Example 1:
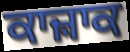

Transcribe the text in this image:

ਕਾਜ਼ਾਕ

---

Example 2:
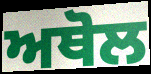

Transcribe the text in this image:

ਅਥੋਲ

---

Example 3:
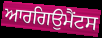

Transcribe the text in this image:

ਆਰਗਿਉਮੈਂਟਸ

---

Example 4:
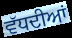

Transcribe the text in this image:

ਵੱਧਦੀਆਂ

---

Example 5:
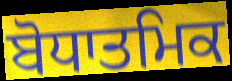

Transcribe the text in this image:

ਬੋਧਾਤਮਿਕ